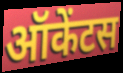
ऑकेंटस